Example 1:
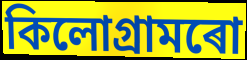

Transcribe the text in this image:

কিলোগ্ৰামৰো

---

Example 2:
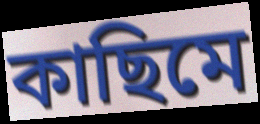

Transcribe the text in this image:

কাছিমে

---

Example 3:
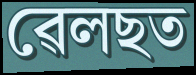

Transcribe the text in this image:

ৱেলছত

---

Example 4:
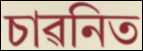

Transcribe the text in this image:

চাৱনিত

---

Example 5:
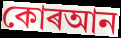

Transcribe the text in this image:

কোৰআন